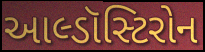
આલ્ડૉસ્ટિરોન